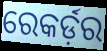
ରେକର୍ଡ଼ର